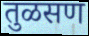
तुळसण